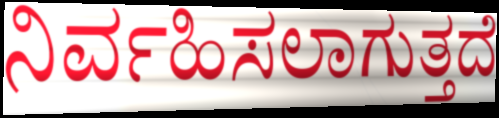
ನಿರ್ವಹಿಸಲಾಗುತ್ತದೆ